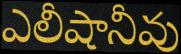
ఎలీషానీవు